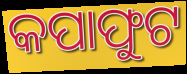
କପାଫୁଟ